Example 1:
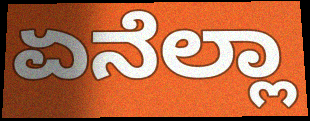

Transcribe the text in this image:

ಏನೆಲ್ಲಾ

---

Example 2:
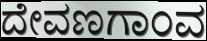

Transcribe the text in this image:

ದೇವಣಗಾಂವ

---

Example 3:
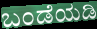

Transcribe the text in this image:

ಬಂಡೆಯಡಿ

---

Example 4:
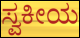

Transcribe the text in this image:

ಸ್ವಕೀಯ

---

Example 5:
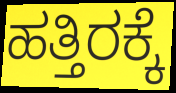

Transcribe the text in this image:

ಹತ್ತಿರಕ್ಕೆ